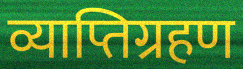
व्याप्तिग्रहण